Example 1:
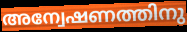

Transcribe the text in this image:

അന്വേഷണത്തിനു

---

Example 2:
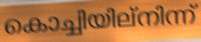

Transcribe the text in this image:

കൊച്ചിയില്നിന്ന്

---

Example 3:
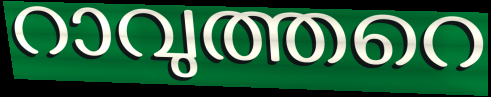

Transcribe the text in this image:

റാവുത്തറെ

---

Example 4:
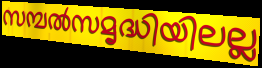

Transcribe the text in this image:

സമ്പൽസമൃദ്ധിയിലല്ല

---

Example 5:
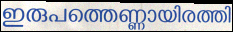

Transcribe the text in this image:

ഇരുപത്തെണ്ണായിരത്തി